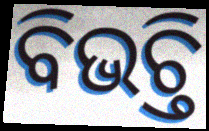
ବିଭଚ୍ତି